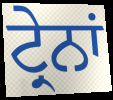
ਟ੍ਰੇਨਾਂ